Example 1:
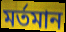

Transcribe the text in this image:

মর্তমান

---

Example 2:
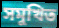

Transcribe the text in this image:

সমুখিত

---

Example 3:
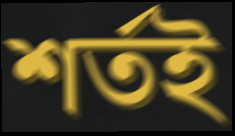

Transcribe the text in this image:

শর্তই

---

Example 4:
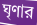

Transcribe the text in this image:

ঘৃণার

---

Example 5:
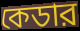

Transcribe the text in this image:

কেডার